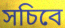
সচিবে